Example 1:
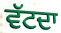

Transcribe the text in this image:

ਵੱਟਦਾ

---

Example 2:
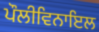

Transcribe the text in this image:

ਪੌਲੀਵਿਨਾਇਲ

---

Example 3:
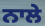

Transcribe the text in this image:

ਨਾਲੇ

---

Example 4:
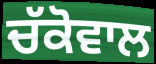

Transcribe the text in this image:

ਚੱਕੋਵਾਲ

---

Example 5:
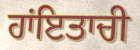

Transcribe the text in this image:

ਹਾਂਇਤਾਚੀ